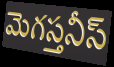
మెగస్తనీస్